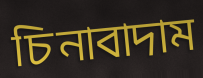
চিনাবাদাম